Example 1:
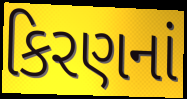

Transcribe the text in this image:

કિરણનાં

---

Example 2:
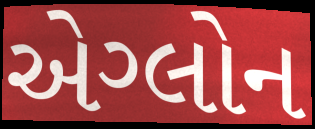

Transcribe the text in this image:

એગ્લોન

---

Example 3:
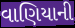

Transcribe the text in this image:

વાણિયાની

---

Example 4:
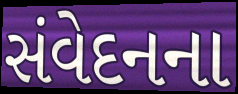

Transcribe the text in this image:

સંવેદનના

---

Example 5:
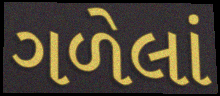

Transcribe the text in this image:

ગળેલાં